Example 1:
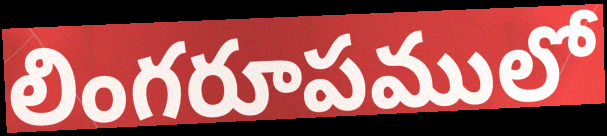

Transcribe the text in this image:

లింగరూపములో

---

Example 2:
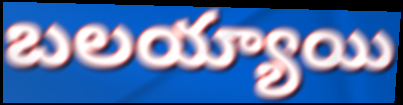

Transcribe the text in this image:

బలయ్యాయి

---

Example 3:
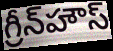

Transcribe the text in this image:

గ్రీన్‌హౌస్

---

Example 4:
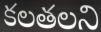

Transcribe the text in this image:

కలతలని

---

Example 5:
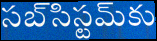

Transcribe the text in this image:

సబ్‌సిస్టమ్‌కు